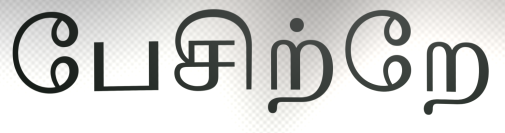
பேசிற்றே